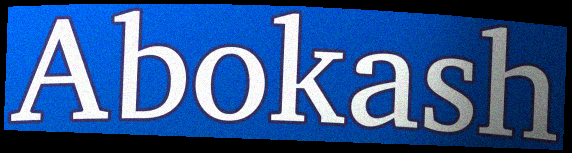
Abokash